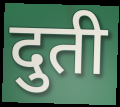
दुती